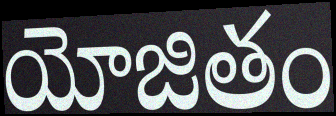
యోజితం